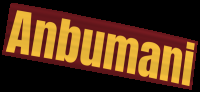
Anbumani